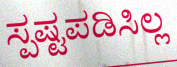
ಸ್ಪಷ್ಟಪಡಿಸಿಲ್ಲ